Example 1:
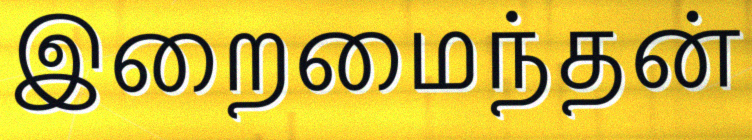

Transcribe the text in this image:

இறைமைந்தன்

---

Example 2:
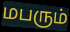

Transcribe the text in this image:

மபரும்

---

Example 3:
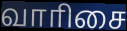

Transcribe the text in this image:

வாரிசை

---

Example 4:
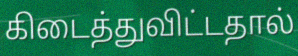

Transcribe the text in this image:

கிடைத்துவிட்டதால்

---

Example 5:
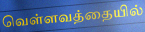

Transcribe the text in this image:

வெள்ளவத்தையில்